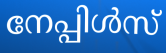
നേപ്പിൾസ്